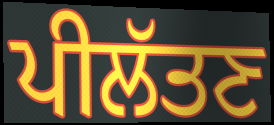
ਪੀਲੱਤਣ